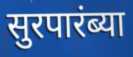
सुरपारंब्या